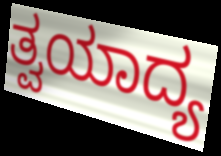
ತ್ವಯಾದ್ಯ